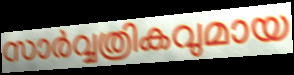
സാർവ്വത്രികവുമായ